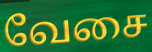
வேசை